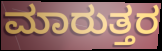
ಮಾರುತ್ತರ